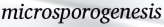
microsporogenesis